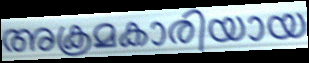
അക്രമകാരിയായ